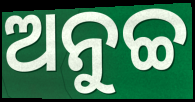
ଅନୁଚ୍ଚ